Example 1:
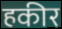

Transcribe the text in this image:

हकीर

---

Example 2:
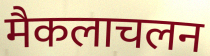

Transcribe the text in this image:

मैकलाचलन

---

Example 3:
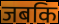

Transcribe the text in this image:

जबकि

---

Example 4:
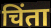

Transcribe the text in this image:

चिंता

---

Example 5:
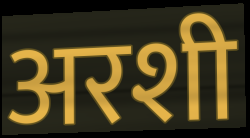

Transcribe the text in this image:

अरशी